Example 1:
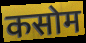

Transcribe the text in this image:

कसोम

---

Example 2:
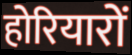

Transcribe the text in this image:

होरियारों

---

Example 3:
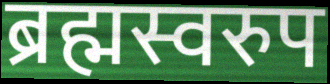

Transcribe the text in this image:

ब्रह्मस्वरुप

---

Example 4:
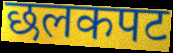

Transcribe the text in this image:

छलकपट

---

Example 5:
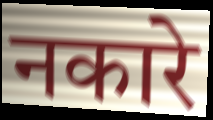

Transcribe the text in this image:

नकारे